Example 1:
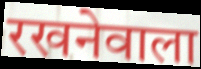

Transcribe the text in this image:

रखनेवाला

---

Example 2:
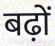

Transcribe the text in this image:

बढ़ों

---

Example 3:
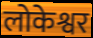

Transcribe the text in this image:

लोकेश्वर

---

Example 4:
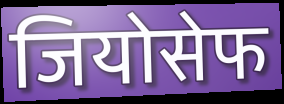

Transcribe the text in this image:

जियोसेफ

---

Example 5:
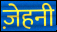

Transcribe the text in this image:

ज़ेहनी